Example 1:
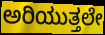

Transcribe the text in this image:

ಅರಿಯುತ್ತಲೇ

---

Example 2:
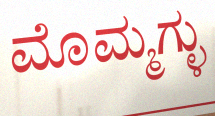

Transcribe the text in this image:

ಮೊಮ್ಮಗ್ಳು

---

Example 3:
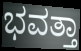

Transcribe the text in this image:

ಭವತ್ತಾ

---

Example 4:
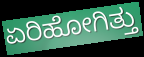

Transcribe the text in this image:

ಏರಿಹೋಗಿತ್ತು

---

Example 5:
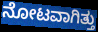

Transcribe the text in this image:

ನೋಟವಾಗಿತ್ತು